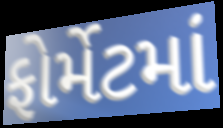
ફોર્મેટમાં